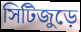
সিটিজুড়ে